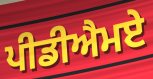
ਪੀਡੀਐਮਏ